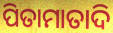
ପିତାମାତାଦି